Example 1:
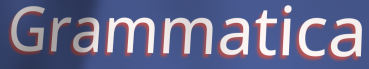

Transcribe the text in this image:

Grammatica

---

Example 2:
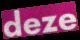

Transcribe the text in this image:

deze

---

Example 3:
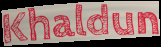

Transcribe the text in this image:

Khaldun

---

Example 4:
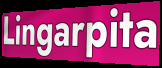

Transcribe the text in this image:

Lingarpita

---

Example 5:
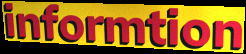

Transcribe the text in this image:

informtion